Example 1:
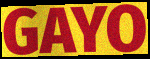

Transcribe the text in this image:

GAYO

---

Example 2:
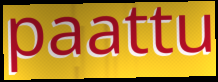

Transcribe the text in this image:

paattu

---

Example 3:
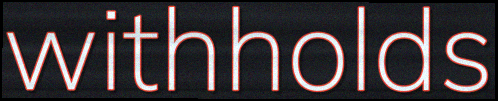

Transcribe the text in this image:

withholds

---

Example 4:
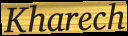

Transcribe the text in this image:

Kharech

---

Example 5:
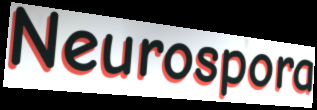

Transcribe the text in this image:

Neurospora